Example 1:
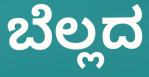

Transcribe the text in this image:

ಬೆಲ್ಲದ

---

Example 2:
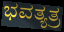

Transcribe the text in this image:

ಭವತ್ಯತ್ರ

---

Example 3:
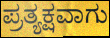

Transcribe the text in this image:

ಪ್ರತ್ಯಕ್ಷವಾಗು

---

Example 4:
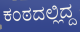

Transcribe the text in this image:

ಕಂಠದಲ್ಲಿದ್ದ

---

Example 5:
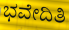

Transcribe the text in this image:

ಭವೇದಿತಿ